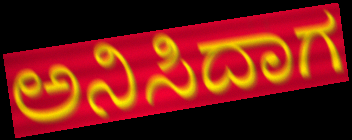
ಅನಿಸಿದಾಗ